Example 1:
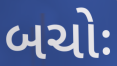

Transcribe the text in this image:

બચોઃ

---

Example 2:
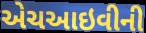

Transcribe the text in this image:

એચઆઇવીની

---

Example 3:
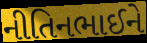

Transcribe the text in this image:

નીતિનભાઈને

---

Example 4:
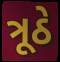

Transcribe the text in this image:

ત્રૂઠે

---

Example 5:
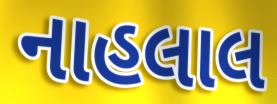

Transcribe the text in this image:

નાહલાલ